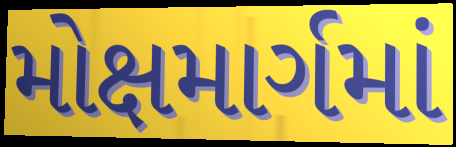
મોક્ષમાર્ગમાં